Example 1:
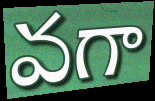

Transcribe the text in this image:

వగా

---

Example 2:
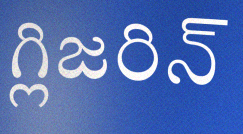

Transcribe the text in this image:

గ్లిజరిన్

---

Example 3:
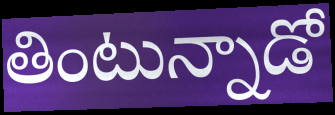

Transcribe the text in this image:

తింటున్నాడో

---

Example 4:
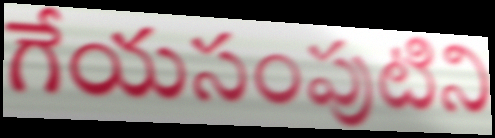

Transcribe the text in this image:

గేయసంపుటిని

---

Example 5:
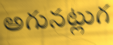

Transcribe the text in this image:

అగునట్లుగ